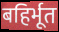
बहिर्भूत